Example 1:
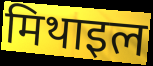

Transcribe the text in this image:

मिथाइल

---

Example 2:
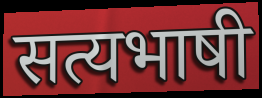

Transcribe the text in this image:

सत्यभाषी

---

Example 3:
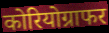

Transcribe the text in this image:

कोरियोग्राफर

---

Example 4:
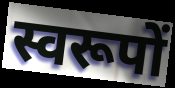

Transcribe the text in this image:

स्वरूपों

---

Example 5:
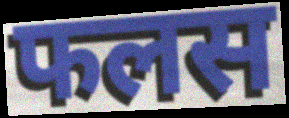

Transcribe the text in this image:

फलस